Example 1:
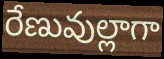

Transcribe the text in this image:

రేణువుల్లాగా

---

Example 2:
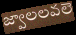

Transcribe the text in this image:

జ్వాలలవలె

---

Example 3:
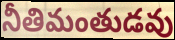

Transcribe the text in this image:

నీతిమంతుడవు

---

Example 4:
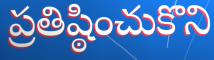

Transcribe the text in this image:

ప్రతిష్ఠించుకొని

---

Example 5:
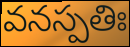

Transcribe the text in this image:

వనస్పతిః